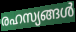
രഹസ്യങ്ങൾ